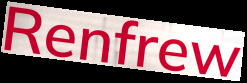
Renfrew